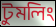
টুমলিং